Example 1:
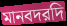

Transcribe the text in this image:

মানবদরদি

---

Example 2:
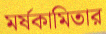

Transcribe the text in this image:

মর্ষকামিতার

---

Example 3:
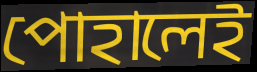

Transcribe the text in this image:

পোহালেই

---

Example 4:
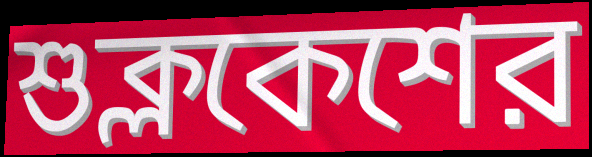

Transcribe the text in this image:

শুক্লকেশের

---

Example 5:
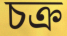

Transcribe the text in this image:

চক্র